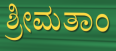
ಶ್ರೀಮತಾಂ